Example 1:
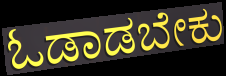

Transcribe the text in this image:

ಓಡಾಡಬೇಕು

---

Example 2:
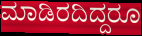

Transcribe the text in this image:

ಮಾಡಿರದಿದ್ದರೂ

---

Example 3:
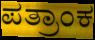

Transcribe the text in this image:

ಪತ್ರಾಂಕ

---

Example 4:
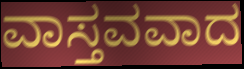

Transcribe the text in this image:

ವಾಸ್ತವವಾದ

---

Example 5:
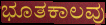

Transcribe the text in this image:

ಭೂತಕಾಲವು